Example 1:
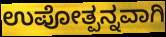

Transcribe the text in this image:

ಉಪೋತ್ಪನ್ನವಾಗಿ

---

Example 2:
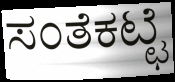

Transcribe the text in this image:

ಸಂತೆಕಟ್ಟೆ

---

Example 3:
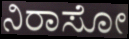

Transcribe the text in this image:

ನಿರಾಸೋ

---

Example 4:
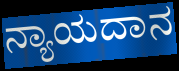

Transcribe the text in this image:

ನ್ಯಾಯದಾನ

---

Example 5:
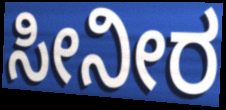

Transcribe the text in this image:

ಸೀನೀರ